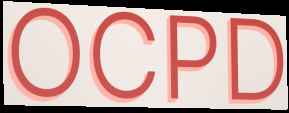
OCPD